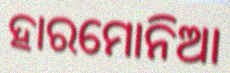
ହାରମୋନିଆ